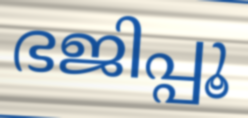
ഭജിപ്പൂ